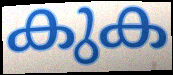
കുക